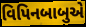
વિપિનબાબુએ